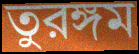
তুরঙ্গম